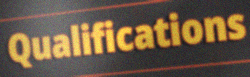
Qualifications